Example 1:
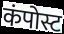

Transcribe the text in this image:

कंपोस्ट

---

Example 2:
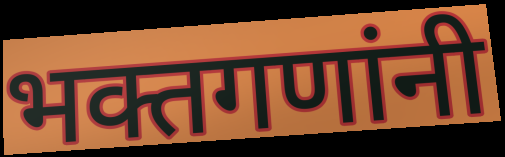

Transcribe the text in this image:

भक्तगणांनी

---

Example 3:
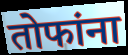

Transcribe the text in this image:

तोफांना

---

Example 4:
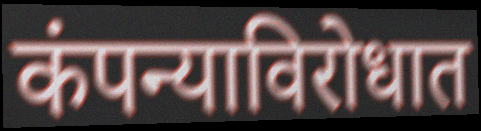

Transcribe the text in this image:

कंपन्याविरोधात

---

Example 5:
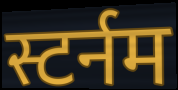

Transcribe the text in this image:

स्टर्नम